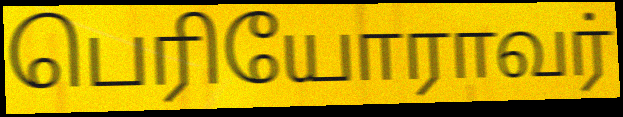
பெரியோராவர்